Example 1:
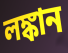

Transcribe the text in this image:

লঙ্কান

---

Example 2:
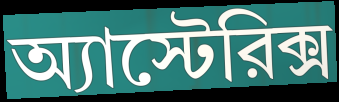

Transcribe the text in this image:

অ্যাস্টেরিক্স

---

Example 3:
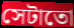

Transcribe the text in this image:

সেটাতো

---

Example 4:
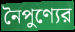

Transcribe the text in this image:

নৈপুণ্যের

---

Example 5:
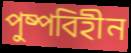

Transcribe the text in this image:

পুষ্পবিহীন